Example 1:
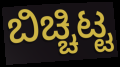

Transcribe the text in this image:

ಬಿಚ್ಚಿಟ್ಟ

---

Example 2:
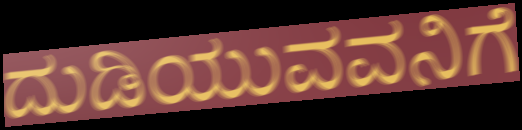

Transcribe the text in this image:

ದುಡಿಯುವವನಿಗೆ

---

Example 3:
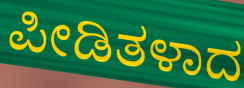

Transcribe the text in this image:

ಪೀಡಿತಳಾದ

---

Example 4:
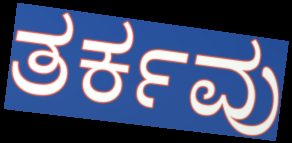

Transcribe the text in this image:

ತರ್ಕವು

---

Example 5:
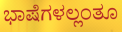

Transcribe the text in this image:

ಭಾಷೆಗಳಲ್ಲಂತೂ